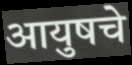
आयुषचे